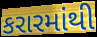
કરારમાંથી